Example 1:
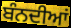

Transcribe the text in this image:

ਬੰਨਦੀਆਂ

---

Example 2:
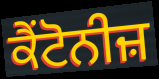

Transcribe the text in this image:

ਕੈਂਟੋਨੀਜ਼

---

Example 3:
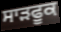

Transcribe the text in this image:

ਸਾੜਫੂਕ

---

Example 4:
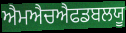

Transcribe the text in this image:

ਐਮਐਚਐਫਡਬਲਯੂ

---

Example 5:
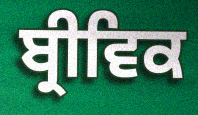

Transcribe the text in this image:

ਬ੍ਰੀਵਿਕ